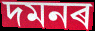
দমনৰ